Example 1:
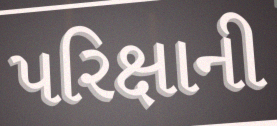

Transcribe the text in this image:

પરિક્ષાની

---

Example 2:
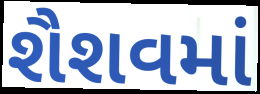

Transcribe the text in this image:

શૈશવમાં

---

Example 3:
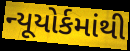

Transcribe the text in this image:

ન્યૂયોર્કમાંથી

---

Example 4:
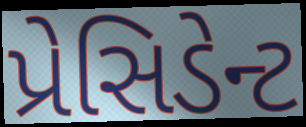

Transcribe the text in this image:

પ્રેસિડેન્ટ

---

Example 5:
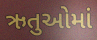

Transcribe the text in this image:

ઋતુઓમાં